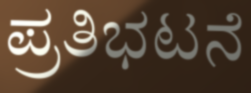
ಪ್ರತಿಭಟನೆ